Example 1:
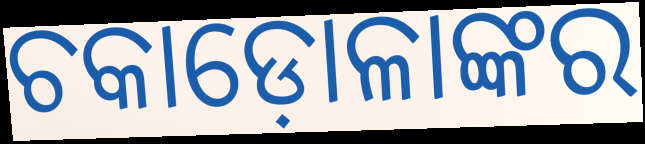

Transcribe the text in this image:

ଚକାଡ଼ୋଳାଙ୍କର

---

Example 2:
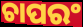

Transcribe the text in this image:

ଚାପରଂ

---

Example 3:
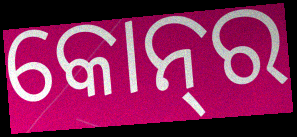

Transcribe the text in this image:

କୋନ୍‌ର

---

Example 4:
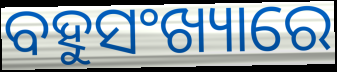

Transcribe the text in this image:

ବହୁସଂଖ୍ୟାରେ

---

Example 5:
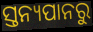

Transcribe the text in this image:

ସ୍ତନ୍ୟପାନରୁ